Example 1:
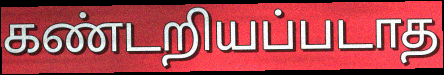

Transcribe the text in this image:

கண்டறியப்படாத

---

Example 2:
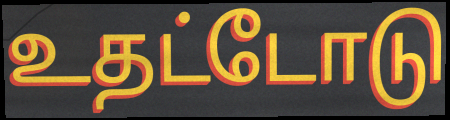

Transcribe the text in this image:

உதட்டோடு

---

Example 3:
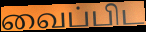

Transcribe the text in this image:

வைப்பிட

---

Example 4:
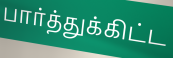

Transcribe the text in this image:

பார்த்துக்கிட்ட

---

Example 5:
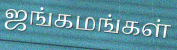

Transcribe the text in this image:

ஜங்கமங்கள்